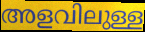
അളവിലുള്ള